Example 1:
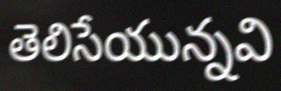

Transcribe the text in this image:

తెలిసేయున్నవి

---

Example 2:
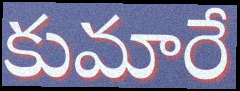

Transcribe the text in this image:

కుమారే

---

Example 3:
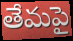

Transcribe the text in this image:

తేమపై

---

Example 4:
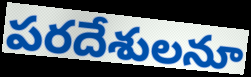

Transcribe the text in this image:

పరదేశులనూ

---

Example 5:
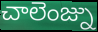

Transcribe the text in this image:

చాలెంజ్ను